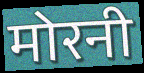
मोरनी